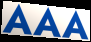
AAA